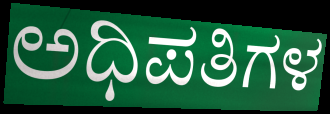
ಅಧಿಪತಿಗಳ